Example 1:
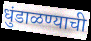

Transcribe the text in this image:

धुंडाळण्याची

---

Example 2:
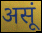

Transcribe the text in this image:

असूं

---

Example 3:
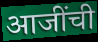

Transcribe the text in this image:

आजींची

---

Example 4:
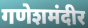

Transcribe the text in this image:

गणेशमंदीर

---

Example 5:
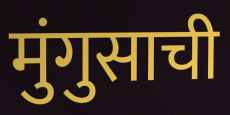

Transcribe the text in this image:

मुंगुसाची